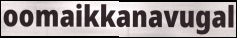
oomaikkanavugal